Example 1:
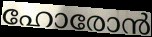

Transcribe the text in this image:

ഹോരോൻ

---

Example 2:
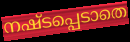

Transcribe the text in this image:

നഷ്ടപ്പെടാതെ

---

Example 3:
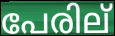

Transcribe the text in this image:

പേരില്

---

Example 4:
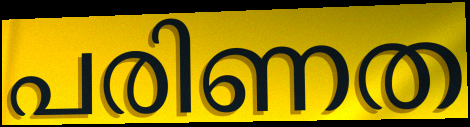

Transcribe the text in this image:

പരിണത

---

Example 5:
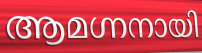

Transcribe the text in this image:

ആമഗ്നനായി